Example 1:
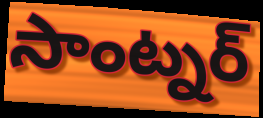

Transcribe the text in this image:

సాంట్నర్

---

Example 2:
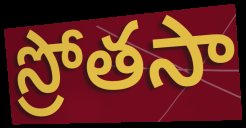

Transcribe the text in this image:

స్రోతసా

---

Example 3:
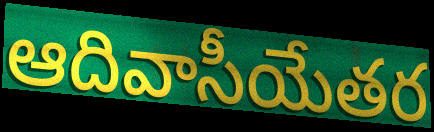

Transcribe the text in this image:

ఆదివాసీయేతర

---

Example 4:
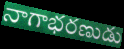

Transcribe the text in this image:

నాగాభరణుడు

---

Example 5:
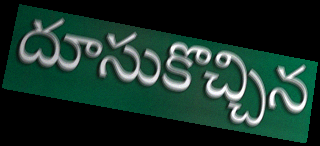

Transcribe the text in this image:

దూసుకొచ్చిన